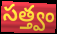
సత్త్వం